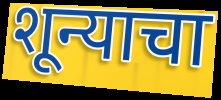
शून्याचा